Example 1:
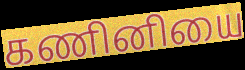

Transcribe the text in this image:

கணினியை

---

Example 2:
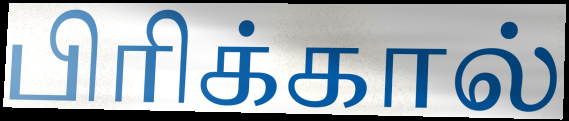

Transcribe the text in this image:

பிரிக்கால்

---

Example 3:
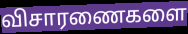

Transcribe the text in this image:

விசாரணைகளை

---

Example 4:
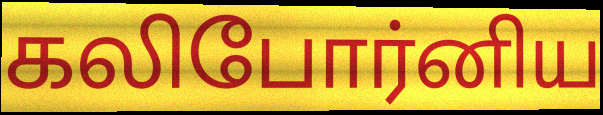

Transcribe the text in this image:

கலிபோர்னிய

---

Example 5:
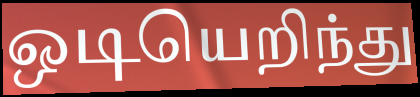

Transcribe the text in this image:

ஒடியெறிந்து